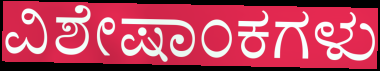
ವಿಶೇಷಾಂಕಗಳು